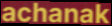
achanak